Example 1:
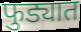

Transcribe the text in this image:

फुड्यात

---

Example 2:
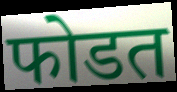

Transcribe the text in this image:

फोडत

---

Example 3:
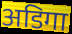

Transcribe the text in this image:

अडिगा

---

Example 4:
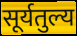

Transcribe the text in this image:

सूर्यतुल्य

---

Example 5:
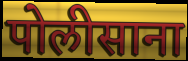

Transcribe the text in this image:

पोलीसाना